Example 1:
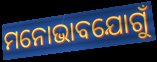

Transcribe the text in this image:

ମନୋଭାବଯୋଗୁଁ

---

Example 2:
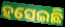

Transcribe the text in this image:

ହସେଇଛି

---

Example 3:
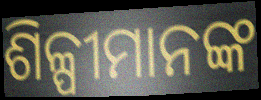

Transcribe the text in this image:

ଶିଳ୍ପୀମାନଙ୍କ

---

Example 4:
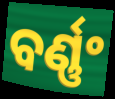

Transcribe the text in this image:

ବର୍ଣ୍ଣଂ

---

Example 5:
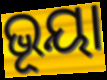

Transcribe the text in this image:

ଭୂୟା